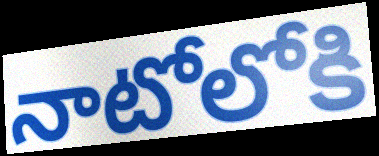
నాటోలోకి